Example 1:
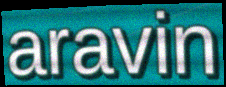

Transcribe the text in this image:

aravin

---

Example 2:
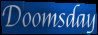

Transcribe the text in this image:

Doomsday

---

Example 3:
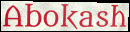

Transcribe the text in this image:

Abokash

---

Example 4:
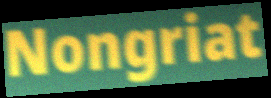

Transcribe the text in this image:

Nongriat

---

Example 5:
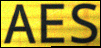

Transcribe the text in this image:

AES